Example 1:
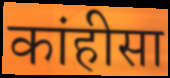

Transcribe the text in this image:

कांहीसा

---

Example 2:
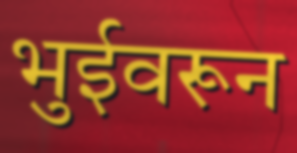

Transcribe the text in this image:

भुईवरून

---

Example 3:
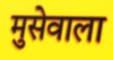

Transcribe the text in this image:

मुसेवाला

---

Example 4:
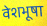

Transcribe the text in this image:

वेशभूषा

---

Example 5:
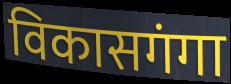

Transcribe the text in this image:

विकासगंगा